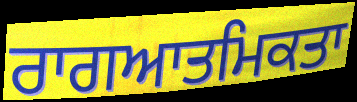
ਰਾਗਆਤਮਿਕਤਾ